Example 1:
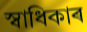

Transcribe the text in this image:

স্বাধিকাৰ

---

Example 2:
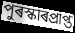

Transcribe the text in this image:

পুৰস্কাৰপ্ৰাপ্ত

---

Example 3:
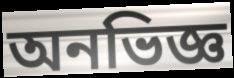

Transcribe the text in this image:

অনভিজ্ঞ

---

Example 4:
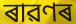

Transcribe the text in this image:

ৰাৱণৰ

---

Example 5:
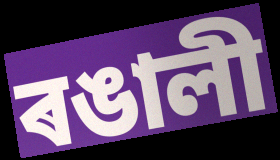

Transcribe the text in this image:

ৰঙালী